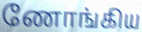
ணோங்கிய